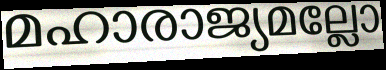
മഹാരാജ്യമല്ലോ